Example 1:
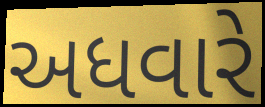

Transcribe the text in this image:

અધવારે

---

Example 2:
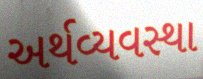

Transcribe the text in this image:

અર્થવ્યવસ્થા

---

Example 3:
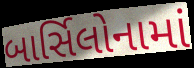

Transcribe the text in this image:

બાર્સિલોનામાં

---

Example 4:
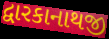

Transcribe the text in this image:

દ્વારકાનાથજી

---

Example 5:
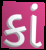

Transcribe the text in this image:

કાં